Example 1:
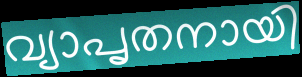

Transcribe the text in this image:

വ്യാപൃതനായി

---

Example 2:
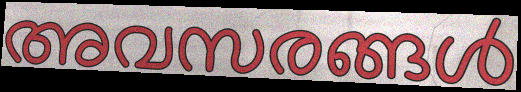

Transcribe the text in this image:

അവസരങ്ങൾ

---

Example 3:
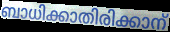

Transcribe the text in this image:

ബാധിക്കാതിരിക്കാന്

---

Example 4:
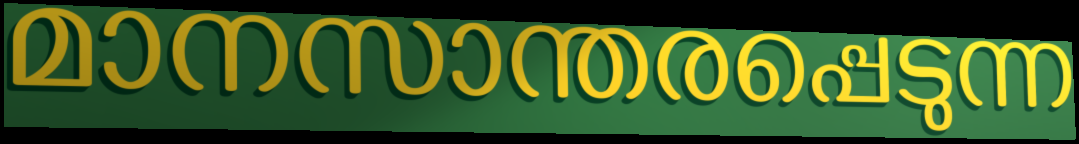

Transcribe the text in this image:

മാനസാന്തരപ്പെടുന്ന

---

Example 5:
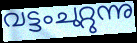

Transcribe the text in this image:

വട്ടംചുറ്റുന്നു